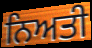
ਨਿਅਤੀ